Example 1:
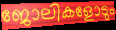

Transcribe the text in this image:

ജോലികളോടും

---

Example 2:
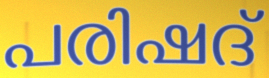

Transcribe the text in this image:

പരിഷദ്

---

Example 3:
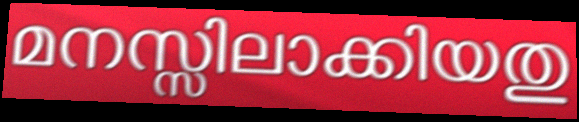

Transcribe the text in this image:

മനസ്സിലാക്കിയതു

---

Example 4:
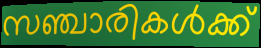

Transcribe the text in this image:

സഞ്ചാരികൾക്ക്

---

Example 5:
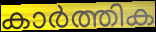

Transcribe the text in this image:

കാർത്തിക